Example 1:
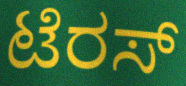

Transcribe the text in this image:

ಟೆರಸ್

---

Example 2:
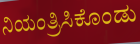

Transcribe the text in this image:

ನಿಯಂತ್ರಿಸಿಕೊಂಡು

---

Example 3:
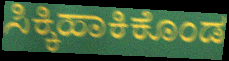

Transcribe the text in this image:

ಸಿಕ್ಕಿಹಾಕಿಕೊಂಡ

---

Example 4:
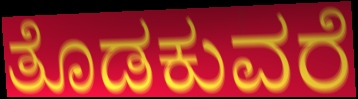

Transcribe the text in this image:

ತೊಡಕುವರೆ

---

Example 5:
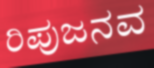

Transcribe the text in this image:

ರಿಪುಜನವ